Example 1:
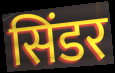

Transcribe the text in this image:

सिंडर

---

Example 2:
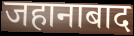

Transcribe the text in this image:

जहानाबाद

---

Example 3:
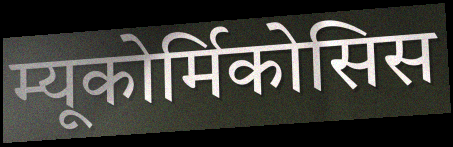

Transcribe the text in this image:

म्यूकोर्मिकोसिस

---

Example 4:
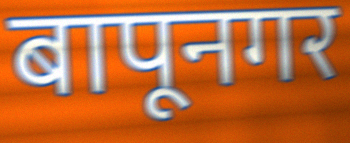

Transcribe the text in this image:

बापूनगर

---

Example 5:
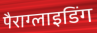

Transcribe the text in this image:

पैराग्लाइडिंग